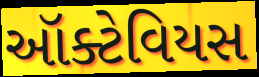
ઑક્ટેવિયસ